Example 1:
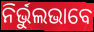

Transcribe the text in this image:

ନିର୍ଭୁଲଭାବେ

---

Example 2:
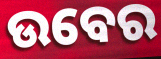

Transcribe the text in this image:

ଉବେର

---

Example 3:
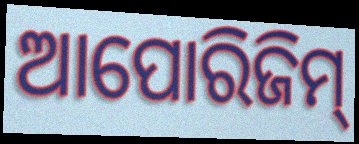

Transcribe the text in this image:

ଆପୋରିଜିମ୍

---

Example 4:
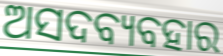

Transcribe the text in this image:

ଅସଦବ୍ୟବହାର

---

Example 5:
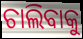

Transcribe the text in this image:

ଚାଲିବାକୁ